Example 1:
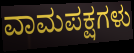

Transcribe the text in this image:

ವಾಮಪಕ್ಷಗಳು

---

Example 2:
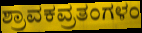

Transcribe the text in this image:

ಶ್ರಾವಕವ್ರತಂಗಳಂ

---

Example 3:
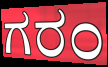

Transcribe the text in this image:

ಗರಂ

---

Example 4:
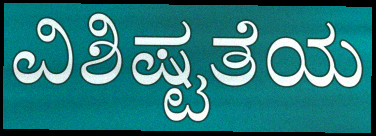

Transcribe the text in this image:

ವಿಶಿಷ್ಟತೆಯ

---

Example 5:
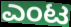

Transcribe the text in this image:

ಎಂಟ